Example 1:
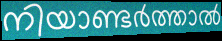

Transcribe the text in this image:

നിയാണ്ടർത്താൽ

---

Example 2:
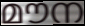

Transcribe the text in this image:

മൗന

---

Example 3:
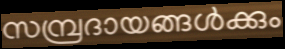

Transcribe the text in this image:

സമ്പ്രദായങ്ങൾക്കും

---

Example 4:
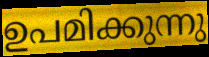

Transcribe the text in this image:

ഉപമിക്കുന്നു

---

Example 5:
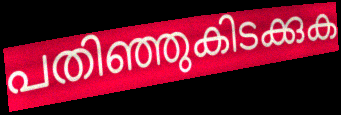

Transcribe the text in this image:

പതിഞ്ഞുകിടക്കുക